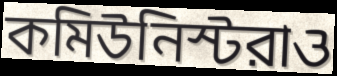
কমিউনিস্টরাও